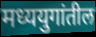
मध्ययुगांतील